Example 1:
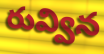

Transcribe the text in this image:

రువ్విన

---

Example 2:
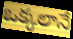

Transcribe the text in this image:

ఒక్కలానే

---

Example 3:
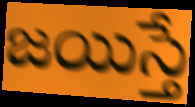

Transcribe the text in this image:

జయిస్తే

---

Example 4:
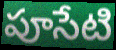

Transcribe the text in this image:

పూసేటి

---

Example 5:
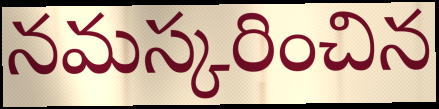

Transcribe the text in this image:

నమస్కరించిన